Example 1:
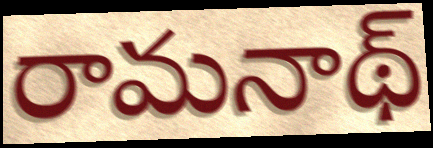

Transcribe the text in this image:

రామనాథ్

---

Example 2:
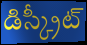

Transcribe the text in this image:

డిస్క్రీట్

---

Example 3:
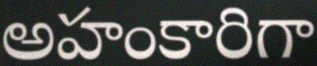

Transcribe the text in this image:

అహంకారిగా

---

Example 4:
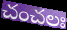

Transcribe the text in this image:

చంచలః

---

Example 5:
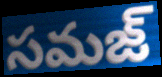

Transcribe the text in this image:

సమజ్